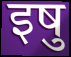
इषु